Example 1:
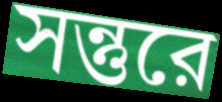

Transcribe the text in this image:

সন্তুরে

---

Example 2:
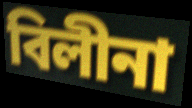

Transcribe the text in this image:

বিলীনা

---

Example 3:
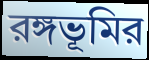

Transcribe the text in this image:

রঙ্গভূমির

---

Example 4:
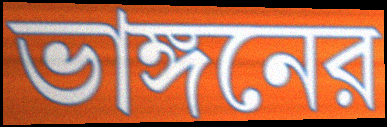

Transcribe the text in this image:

ভাঙ্গনের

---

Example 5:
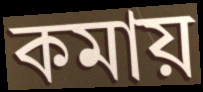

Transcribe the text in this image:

কমায়